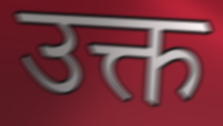
उक्त